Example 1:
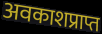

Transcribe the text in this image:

अवकाशप्राप्त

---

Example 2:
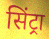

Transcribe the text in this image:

सिंट्रा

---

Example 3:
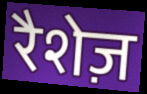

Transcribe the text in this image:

रैशेज़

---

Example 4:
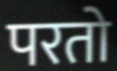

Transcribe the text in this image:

परतो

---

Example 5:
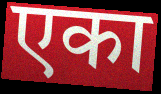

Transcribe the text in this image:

एका